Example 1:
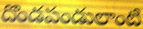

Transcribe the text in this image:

దొండపండులాంటి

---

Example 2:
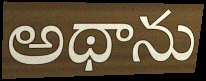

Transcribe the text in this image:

అథాను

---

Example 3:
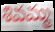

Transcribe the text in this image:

శివమ్మ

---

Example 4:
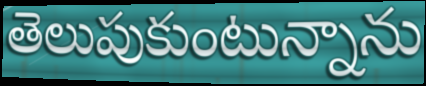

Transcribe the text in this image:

తెలుపుకుంటున్నాను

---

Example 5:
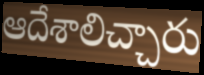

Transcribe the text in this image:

ఆదేశాలిచ్చారు